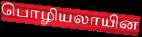
பொழியலாயின